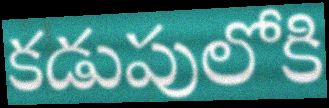
కడుపులోకి